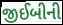
જીઈબીની